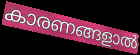
കാരണങ്ങളാൽ